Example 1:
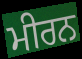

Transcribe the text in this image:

ਮੀਰਨ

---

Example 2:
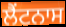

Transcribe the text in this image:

ਲੈਂਟਨਾਸ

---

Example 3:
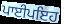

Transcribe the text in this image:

ਪਾਈਪਇਹ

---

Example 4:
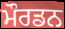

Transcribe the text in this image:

ਮੌਰਡਨ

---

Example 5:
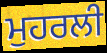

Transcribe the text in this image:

ਮੁਹਰਲੀ